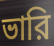
ভারি